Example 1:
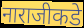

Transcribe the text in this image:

नाराजीकडे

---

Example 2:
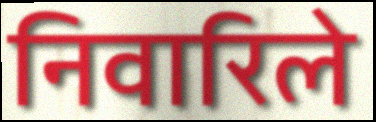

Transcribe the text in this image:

निवारिले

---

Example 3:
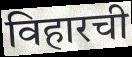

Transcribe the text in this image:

विहारची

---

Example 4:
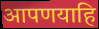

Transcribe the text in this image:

आपणयाहि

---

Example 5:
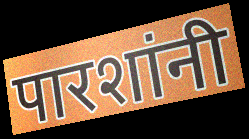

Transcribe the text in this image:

पारशांनी